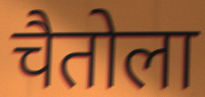
चैतोला